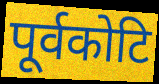
पूर्वकोटि